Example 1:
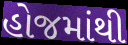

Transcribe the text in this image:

હોજમાંથી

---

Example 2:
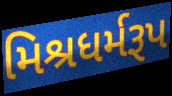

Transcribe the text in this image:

મિશ્રધર્મરૂપ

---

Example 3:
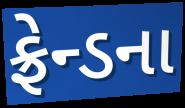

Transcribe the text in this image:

ફ્રેન્ડના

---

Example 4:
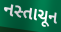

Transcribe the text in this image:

નસ્તાચૂન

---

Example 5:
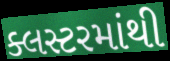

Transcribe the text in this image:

ક્લસ્ટરમાંથી